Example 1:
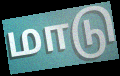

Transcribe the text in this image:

மாடு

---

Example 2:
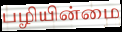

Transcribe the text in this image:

பழியின்மை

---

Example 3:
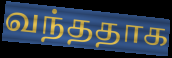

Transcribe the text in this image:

வந்ததாக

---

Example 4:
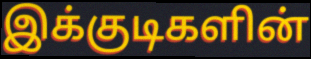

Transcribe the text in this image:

இக்குடிகளின்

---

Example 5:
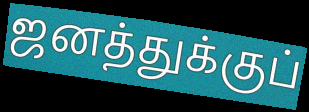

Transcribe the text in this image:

ஜனத்துக்குப்